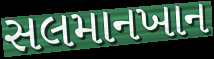
સલમાનખાન